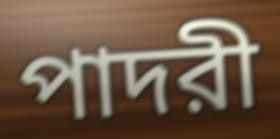
পাদরী